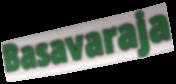
Basavaraja